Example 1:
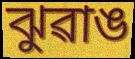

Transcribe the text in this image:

ঝুৱাঙ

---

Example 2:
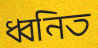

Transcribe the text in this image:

ধ্বনিত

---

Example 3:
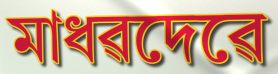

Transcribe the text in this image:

মাধৱদেৱে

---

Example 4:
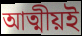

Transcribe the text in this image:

আত্মীয়ই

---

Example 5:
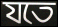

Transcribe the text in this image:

যতে